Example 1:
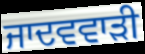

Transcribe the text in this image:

ਜਾਦਵਵਾੜੀ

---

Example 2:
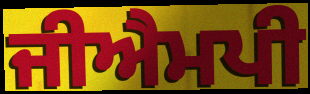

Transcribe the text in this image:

ਜੀਐਮਪੀ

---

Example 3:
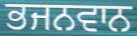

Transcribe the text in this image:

ਭਜਨਵਾਨ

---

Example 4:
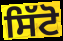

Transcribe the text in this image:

ਸਿੱਟੋ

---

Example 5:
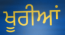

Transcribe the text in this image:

ਖੂਰੀਆਂ